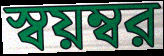
স্বয়ম্বর